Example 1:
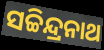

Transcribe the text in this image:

ସଚ୍ଚିନ୍ଦ୍ରନାଥ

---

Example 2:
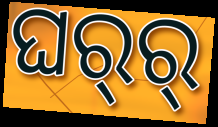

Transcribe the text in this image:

ଘର୍‍ର୍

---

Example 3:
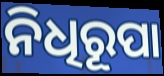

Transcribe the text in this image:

ନିଧିରୂପା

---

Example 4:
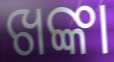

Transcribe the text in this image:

ଖଙ୍କା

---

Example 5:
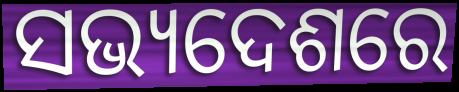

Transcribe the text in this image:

ସଭ୍ୟଦେଶରେ